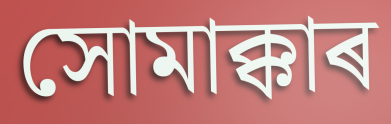
সোমাক্কাৰ